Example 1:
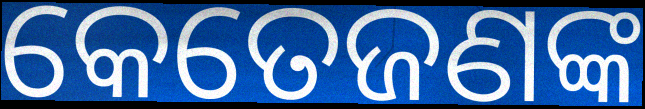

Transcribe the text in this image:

କେତେଜଣଙ୍କ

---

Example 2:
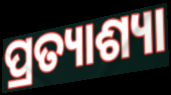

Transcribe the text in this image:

ପ୍ରତ୍ୟାଶ୍ୟା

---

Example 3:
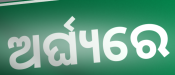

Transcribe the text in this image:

ଅର୍ଘ୍ୟରେ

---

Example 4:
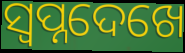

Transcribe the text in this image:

ସ୍ୱପ୍ନଦେଖେ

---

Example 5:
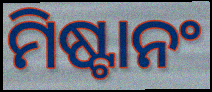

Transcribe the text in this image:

ମିଷ୍ଟାନଂ